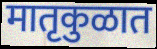
मातृकुळात